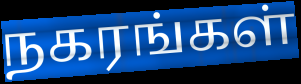
நகரங்கள்